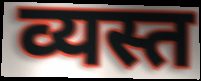
व्यस्त